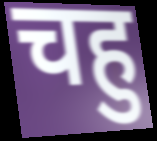
चहु